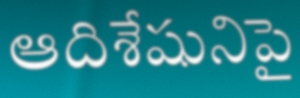
ఆదిశేషునిపై